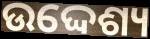
ଉଦ୍ଦେଶ୍ୟ